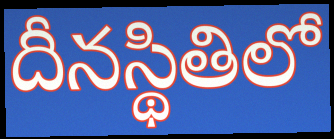
దీనస్థితిలో